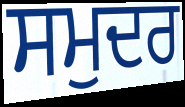
ਸਮੁਦਰ